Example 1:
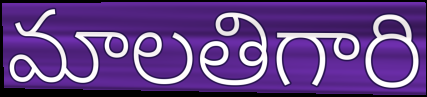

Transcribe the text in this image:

మాలతిగారి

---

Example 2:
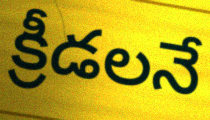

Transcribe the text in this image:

క్రీడలనే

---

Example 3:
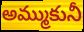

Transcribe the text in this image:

అమ్ముకునీ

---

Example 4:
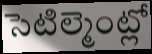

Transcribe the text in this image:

సెటిల్మెంట్లో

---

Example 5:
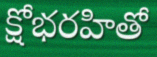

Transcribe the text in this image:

క్షోభరహితో